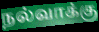
நல்வாக்கு